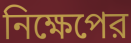
নিক্ষেপের